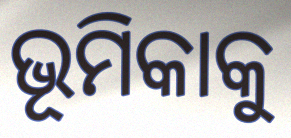
ଭୂମିକାକୁ